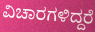
ವಿಚಾರಗಳಿದ್ದರೆ